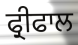
ਫ੍ਰੀਫਾਲ